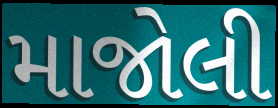
માજોલી